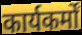
कार्यकर्मों